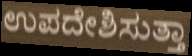
ಉಪದೇಶಿಸುತ್ತಾ